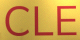
CLE